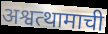
अश्वत्थामाची